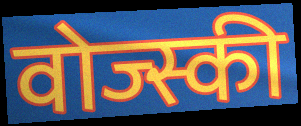
वोज्स्की